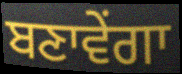
ਬਣਾਵੇਂਗਾ